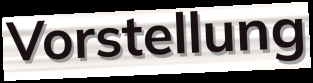
Vorstellung